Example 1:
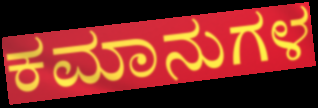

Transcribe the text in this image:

ಕಮಾನುಗಳ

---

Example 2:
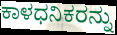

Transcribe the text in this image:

ಕಾಳಧನಿಕರನ್ನು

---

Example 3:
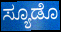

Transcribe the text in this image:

ಸ್ಯೂಡೊ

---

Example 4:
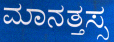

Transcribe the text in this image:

ಮಾನತ್ತಸ್ಸ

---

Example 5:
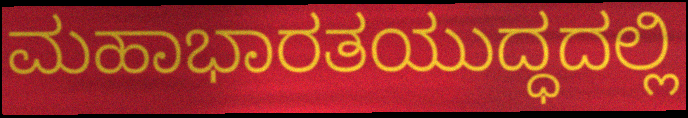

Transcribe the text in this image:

ಮಹಾಭಾರತಯುದ್ಧದಲ್ಲಿ